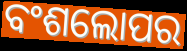
ବଂଶଲୋପର